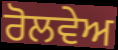
ਰੋਲਵੇਅ